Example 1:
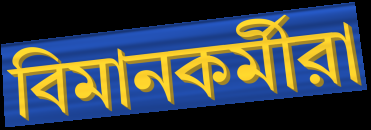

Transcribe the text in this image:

বিমানকর্মীরা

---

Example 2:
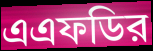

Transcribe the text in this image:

এএফডির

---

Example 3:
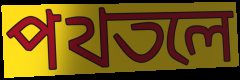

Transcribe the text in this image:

পথতলে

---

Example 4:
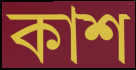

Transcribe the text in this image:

কাশ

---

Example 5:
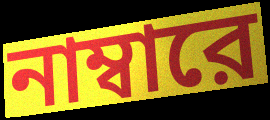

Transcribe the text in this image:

নাম্বারে